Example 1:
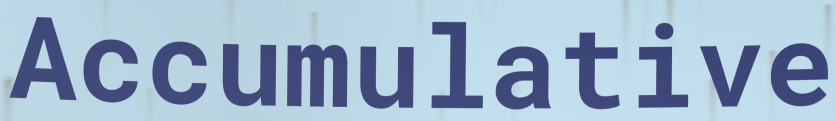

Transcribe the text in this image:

Accumulative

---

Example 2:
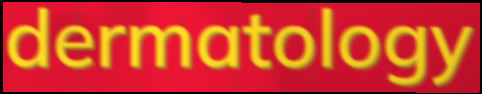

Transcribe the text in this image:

dermatology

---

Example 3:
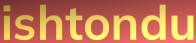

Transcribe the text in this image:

ishtondu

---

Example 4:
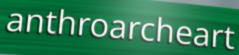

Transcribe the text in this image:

anthroarcheart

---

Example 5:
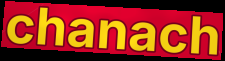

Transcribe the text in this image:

chanach